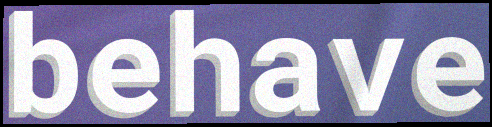
behave